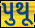
પુથૂ